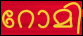
റോമി